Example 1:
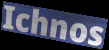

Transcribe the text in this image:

Ichnos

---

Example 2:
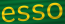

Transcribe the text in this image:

esso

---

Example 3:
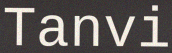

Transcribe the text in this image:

Tanvi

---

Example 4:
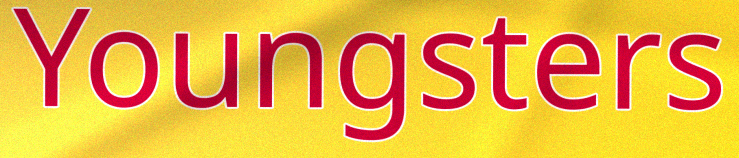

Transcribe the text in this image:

Youngsters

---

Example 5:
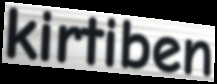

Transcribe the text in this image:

kirtiben